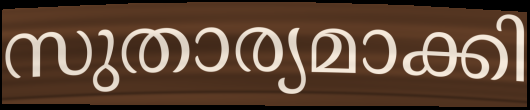
സുതാര്യമാക്കി